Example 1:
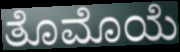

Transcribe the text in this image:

ತೊಮೊಯೆ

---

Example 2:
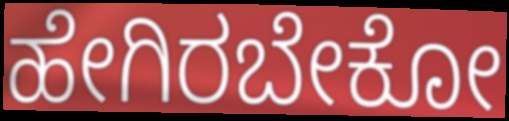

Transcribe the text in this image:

ಹೇಗಿರಬೇಕೋ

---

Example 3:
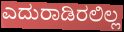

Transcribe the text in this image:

ಎದುರಾಡಿರಲಿಲ್ಲ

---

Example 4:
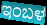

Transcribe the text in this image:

ಇಂಬಳ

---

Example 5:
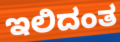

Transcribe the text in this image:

ಇಲಿದಂತ